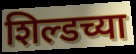
शिल्डच्या